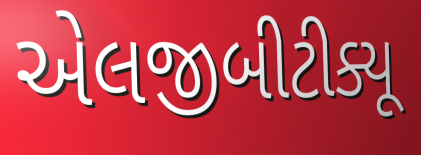
એલજીબીટીક્યૂ